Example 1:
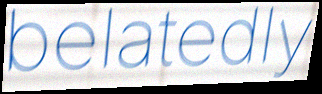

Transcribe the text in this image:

belatedly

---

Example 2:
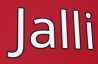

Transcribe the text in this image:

Jalli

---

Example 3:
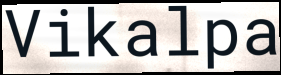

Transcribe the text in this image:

Vikalpa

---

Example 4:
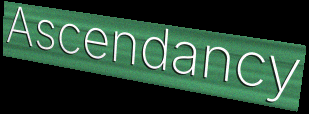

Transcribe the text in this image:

Ascendancy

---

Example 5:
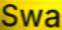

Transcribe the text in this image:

Swa